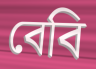
বেবি